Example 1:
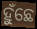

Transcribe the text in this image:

ହୁଁଛେ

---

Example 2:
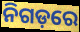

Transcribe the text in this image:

ନିଗଡ଼ରେ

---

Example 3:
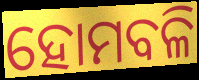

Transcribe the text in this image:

ହୋମବଳି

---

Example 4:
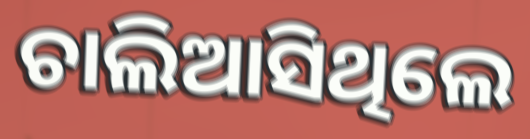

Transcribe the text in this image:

ଚାଲିଆସିଥିଲେ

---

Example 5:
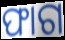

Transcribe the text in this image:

ଫାଗ